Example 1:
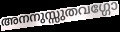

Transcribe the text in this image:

അനനുസ്സുതവഗ്ഗോ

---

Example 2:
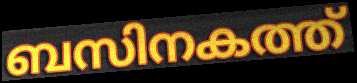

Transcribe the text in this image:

ബസിനകത്ത്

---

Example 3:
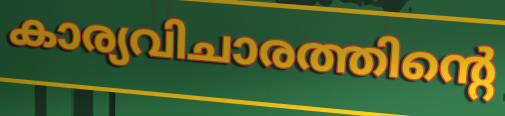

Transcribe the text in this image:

കാര്യവിചാരത്തിന്റെ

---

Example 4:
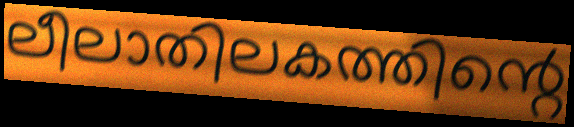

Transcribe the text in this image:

ലീലാതിലകത്തിന്റെ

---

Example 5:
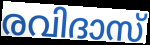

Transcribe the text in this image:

രവിദാസ്